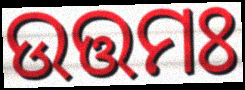
ଉତ୍ତମଃ